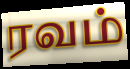
ரவம்